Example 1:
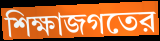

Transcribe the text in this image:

শিক্ষাজগতের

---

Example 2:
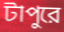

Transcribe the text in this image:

টাপুরে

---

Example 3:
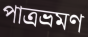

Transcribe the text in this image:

পাত্রভ্রমণ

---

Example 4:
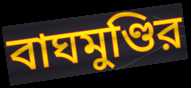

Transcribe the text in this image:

বাঘমুণ্ডির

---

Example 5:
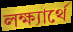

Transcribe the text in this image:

লক্ষ্যার্থে